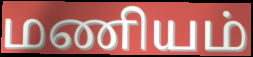
மணியம்